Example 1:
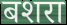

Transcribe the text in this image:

बशरा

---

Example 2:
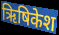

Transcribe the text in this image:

ऋिषिकेश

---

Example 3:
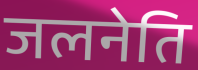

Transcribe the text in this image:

जलनेति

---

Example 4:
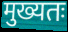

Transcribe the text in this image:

मुख्यतः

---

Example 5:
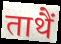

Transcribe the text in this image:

ताथैं